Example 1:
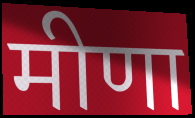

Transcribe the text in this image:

मीणा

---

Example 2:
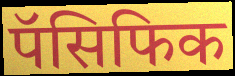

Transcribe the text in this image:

पॅसिफिक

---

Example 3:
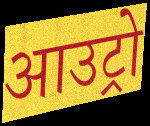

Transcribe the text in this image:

आउट्रो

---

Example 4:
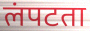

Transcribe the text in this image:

लंपटता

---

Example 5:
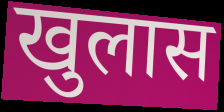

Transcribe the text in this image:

खुलास